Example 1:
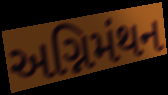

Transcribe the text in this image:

અગ્નિમંથન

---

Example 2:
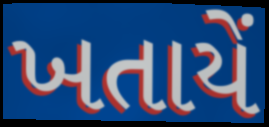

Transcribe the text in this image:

ખતાયેં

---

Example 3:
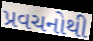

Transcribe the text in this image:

પ્રવચનોથી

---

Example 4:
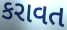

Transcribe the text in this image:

કરાવત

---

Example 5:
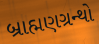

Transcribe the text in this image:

બ્રાહ્મણગ્રન્થો